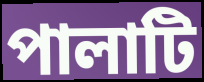
পালাটি